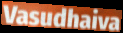
Vasudhaiva